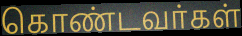
கொண்டவர்கள்